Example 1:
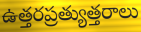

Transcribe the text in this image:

ఉత్తరప్రత్యుత్తరాలు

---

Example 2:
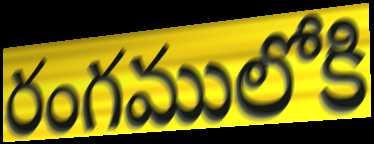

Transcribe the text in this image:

రంగములోకి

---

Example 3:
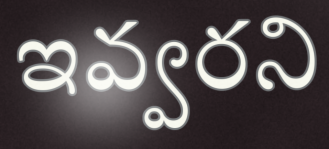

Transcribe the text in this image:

ఇవ్వరని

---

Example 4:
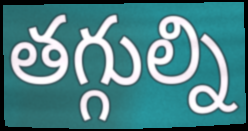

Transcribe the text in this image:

తగ్గుల్ని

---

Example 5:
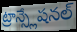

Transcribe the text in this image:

ట్రాన్స్లేషనల్